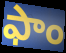
ఫాం